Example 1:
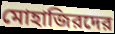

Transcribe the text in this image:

মোহাজিরদের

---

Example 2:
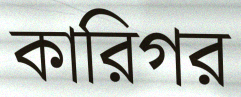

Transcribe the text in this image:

কারিগর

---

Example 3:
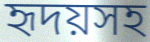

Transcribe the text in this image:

হৃদয়সহ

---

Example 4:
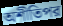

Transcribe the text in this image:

অশীতিপর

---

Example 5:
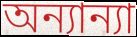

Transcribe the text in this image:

অন্যান্যা